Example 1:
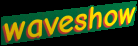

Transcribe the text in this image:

waveshow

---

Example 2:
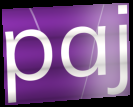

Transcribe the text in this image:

paj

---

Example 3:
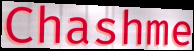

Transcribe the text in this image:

Chashme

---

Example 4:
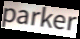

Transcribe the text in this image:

parker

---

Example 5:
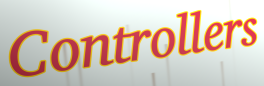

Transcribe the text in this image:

Controllers